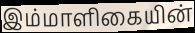
இம்மாளிகையின்